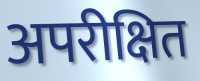
अपरीक्षित